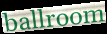
ballroom